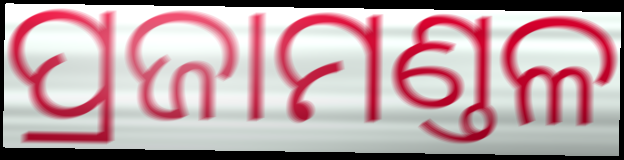
ପ୍ରଜାମଣ୍ତଳ